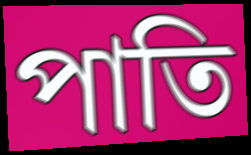
পাতি